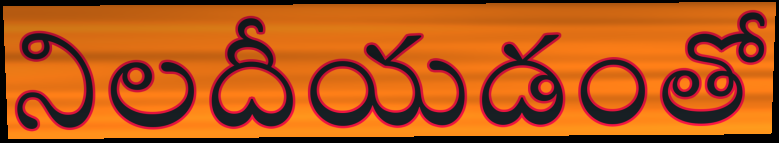
నిలదీయడంతో